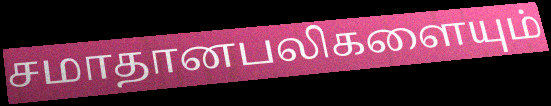
சமாதானபலிகளையும்